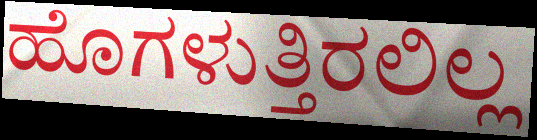
ಹೊಗಳುತ್ತಿರಲಿಲ್ಲ